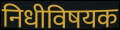
निधीविषयक